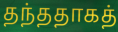
தந்ததாகத்